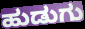
ಹುಡುಗು